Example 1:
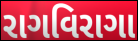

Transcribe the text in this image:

રાગવિરાગા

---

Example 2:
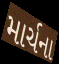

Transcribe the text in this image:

માર્ચના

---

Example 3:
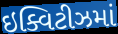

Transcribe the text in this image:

ઇક્વિટીઝમાં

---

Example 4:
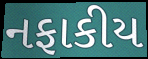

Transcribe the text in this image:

નફાકીય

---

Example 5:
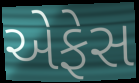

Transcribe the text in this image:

એફેસ